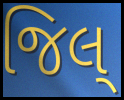
જિલ્